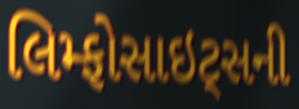
લિમ્ફોસાઇટ્સની